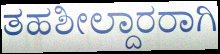
ತಹಶೀಲ್ದಾರರಾಗಿ